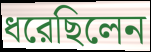
ধরেছিলেন